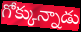
గోక్కున్నాడు